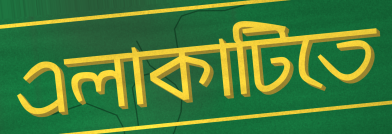
এলাকাটিতে